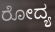
ರೋದ್ಯ